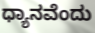
ಧ್ಯಾನವೆಂದು